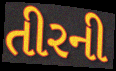
તીરની